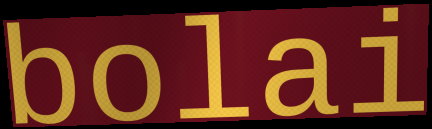
bolai